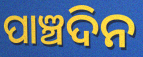
ପାଞ୍ଚଦିନ